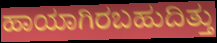
ಹಾಯಾಗಿರಬಹುದಿತ್ತು